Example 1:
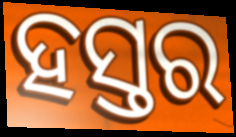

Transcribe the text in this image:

ହସ୍ତର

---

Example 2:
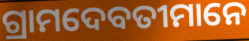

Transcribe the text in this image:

ଗ୍ରାମଦେବତୀମାନେ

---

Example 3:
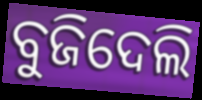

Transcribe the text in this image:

ବୁଜିଦେଲି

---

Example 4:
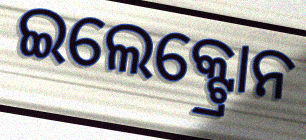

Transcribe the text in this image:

ଇଲେକ୍ଟ୍ରୋନ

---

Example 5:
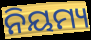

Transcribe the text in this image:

ନିୟମ୍ୟ